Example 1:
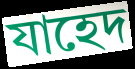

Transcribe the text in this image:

যাহেদ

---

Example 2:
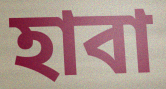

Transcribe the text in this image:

হাবা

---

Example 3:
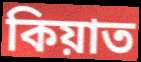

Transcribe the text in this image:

কিয়াত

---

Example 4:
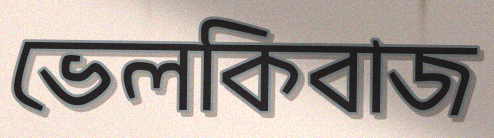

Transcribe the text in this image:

ভেলকিবাজ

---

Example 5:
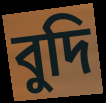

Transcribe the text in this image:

বুদি